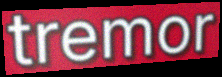
tremor